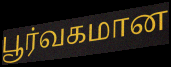
பூர்வகமான